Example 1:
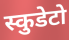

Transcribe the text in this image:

स्कुडेटो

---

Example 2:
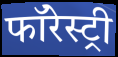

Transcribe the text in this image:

फॉरेस्ट्री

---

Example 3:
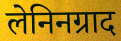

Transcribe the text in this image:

लेनिनग्राद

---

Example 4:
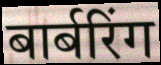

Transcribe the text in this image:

बार्बरिंग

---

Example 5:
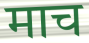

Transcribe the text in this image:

माच